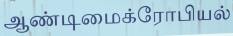
ஆண்டிமைக்ரோபியல்